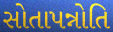
સોતાપન્નોતિ